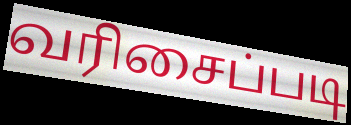
வரிசைப்படி